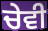
ਚੇਵੀ